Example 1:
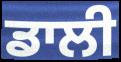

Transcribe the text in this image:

ਡਾਲੀ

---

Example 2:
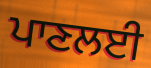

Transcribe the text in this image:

ਪਾਣਲਈ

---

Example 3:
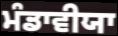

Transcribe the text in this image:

ਮੰਡਾਵੀਯਾ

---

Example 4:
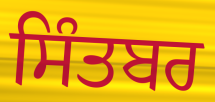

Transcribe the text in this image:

ਸਿੰਤਬਰ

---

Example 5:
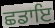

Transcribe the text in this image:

ਛਡਾਇ